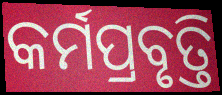
କର୍ମପ୍ରବୃତ୍ତି